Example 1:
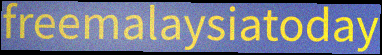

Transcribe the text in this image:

freemalaysiatoday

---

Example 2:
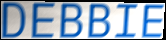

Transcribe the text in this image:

DEBBIE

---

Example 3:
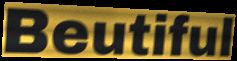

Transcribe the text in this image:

Beutiful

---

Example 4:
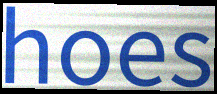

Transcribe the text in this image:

hoes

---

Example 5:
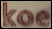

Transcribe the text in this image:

koe